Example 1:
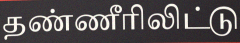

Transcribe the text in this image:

தண்ணீரிலிட்டு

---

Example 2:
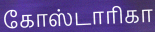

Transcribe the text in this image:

கோஸ்டாரிகா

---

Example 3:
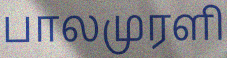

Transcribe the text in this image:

பாலமுரளி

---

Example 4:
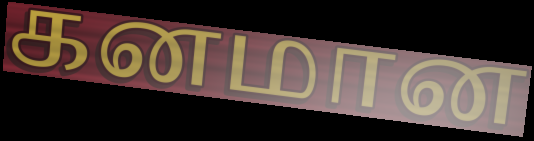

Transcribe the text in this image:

கனமான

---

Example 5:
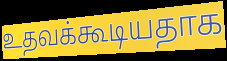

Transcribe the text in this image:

உதவக்கூடியதாக